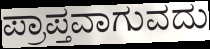
ಪ್ರಾಪ್ತವಾಗುವದು